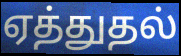
ஏத்துதல்